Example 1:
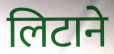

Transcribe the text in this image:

लिटाने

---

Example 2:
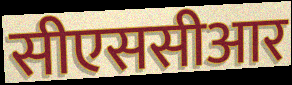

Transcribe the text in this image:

सीएससीआर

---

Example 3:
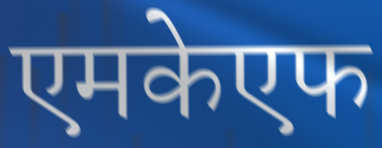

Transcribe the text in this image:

एमकेएफ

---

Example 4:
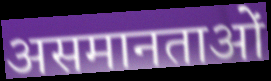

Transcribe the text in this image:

असमानताओं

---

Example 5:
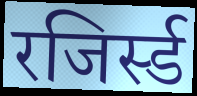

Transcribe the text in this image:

रजिर्स्ड